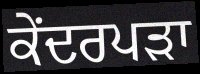
ਕੇਂਦਰਪੜਾ